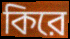
কিরে